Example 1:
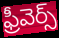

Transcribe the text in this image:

ఫ్రీవెర్స్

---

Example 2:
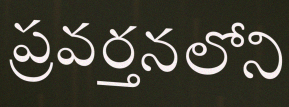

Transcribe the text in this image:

ప్రవర్తనలోని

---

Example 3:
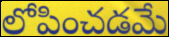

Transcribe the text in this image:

లోపించడమే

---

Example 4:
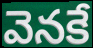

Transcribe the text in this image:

వెనకే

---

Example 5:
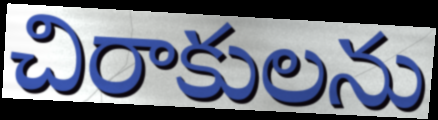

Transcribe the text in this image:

చిరాకులను